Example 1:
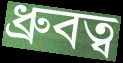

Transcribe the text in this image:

ধ্রুবত্ব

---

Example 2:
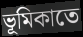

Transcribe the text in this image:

ভূমিকাতে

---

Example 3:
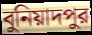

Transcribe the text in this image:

বুনিয়াদপুর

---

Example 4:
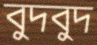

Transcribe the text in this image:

বুদবুদ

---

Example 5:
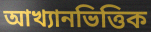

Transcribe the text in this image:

আখ্যানভিত্তিক